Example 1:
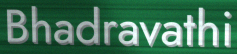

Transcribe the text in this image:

Bhadravathi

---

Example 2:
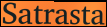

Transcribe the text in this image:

Satrasta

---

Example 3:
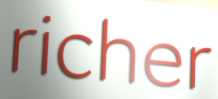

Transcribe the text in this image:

richer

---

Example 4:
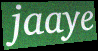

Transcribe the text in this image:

jaaye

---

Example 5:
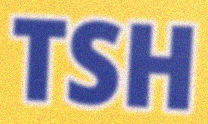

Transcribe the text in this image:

TSH